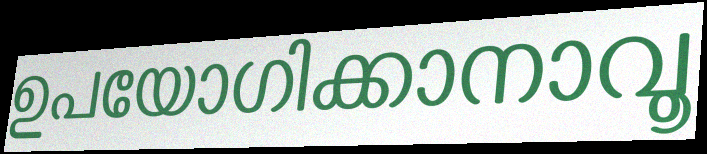
ഉപയോഗിക്കാനാവൂ